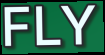
FLY